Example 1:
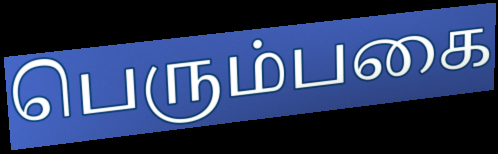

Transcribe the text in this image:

பெரும்பகை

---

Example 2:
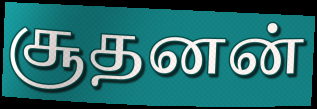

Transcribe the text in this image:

சூதனன்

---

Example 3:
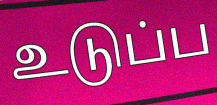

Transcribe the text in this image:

உடுப்ப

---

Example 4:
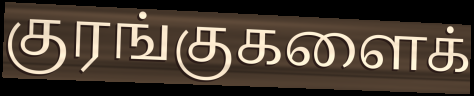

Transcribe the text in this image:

குரங்குகளைக்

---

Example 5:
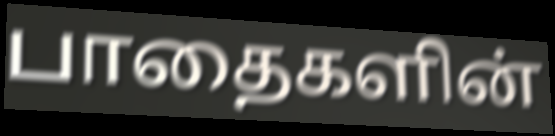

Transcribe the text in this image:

பாதைகளின்